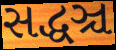
સદ્ધઞ્ચ